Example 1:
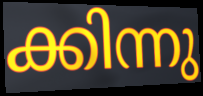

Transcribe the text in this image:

ക്കിന്നു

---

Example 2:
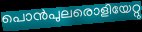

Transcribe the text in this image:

പൊൻപുലരൊളിയേറ്റു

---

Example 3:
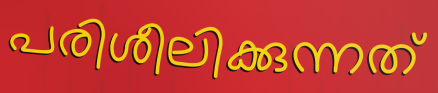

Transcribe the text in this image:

പരിശീലിക്കുന്നത്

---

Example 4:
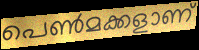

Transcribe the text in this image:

പെൺമക്കളാണ്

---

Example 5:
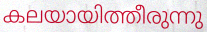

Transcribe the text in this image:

കലയായിത്തീരുന്നു